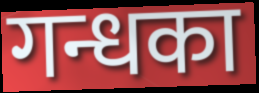
गन्धका